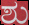
ಶು